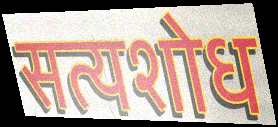
सत्यशोध